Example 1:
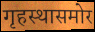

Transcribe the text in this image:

गृहस्थासमोर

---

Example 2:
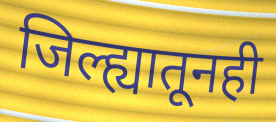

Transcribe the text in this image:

जिल्ह्यातूनही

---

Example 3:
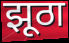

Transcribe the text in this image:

झूठा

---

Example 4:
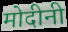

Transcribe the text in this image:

मोदीनी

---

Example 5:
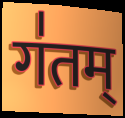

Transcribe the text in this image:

ग॑तम्